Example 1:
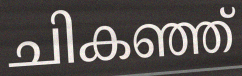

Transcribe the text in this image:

ചികഞ്ഞ്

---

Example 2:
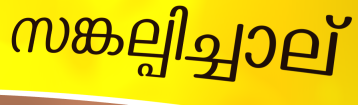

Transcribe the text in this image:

സങ്കല്പിച്ചാല്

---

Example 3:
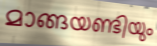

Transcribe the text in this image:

മാങ്ങയണ്ടിയും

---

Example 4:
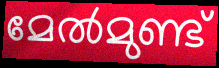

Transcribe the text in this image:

മേൽമുണ്ട്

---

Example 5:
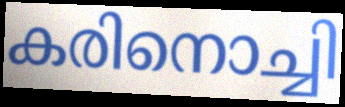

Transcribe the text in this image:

കരിനൊച്ചി